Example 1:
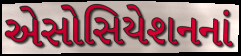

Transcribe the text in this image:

એસોસિયેશનનાં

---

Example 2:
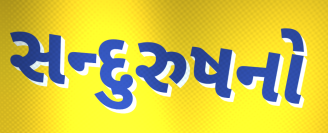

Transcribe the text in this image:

સન્દુરુષનો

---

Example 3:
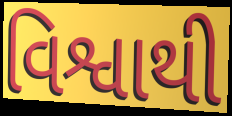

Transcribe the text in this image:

વિશ્વાથી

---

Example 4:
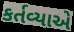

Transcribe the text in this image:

કર્તવ્યાએ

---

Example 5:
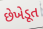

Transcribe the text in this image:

છેખેડૂત